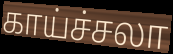
காய்ச்சலா